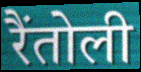
रैंतोली